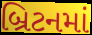
બ્રિટનમાં